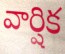
వార్షిక